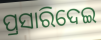
ପ୍ରସାରିଦେଇ